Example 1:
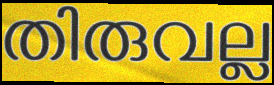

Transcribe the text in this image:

തിരുവല്ല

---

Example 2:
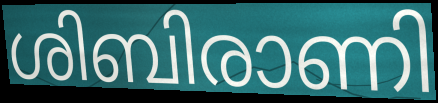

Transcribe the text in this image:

ശിബിരാണി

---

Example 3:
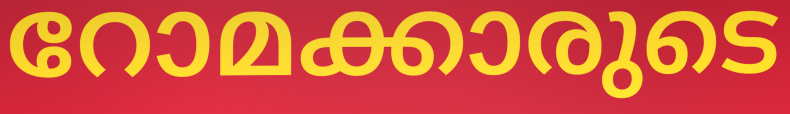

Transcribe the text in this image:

റോമക്കാരുടെ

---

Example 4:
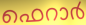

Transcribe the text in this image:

ഫെറാർ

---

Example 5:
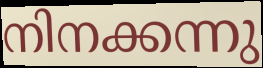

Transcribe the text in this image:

നിനക്കന്നു